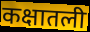
कक्षातली